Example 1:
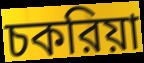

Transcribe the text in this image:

চকরিয়া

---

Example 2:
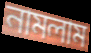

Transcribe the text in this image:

নামলাম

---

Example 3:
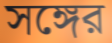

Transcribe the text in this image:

সঙ্গের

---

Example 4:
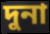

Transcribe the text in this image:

দুনা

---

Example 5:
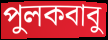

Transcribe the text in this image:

পুলকবাবু